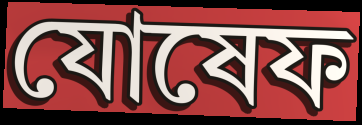
যোষেফ